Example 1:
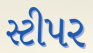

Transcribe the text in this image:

સ્ટીપર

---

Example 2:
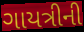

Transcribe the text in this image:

ગાયત્રીની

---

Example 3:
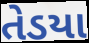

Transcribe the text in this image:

તેડયા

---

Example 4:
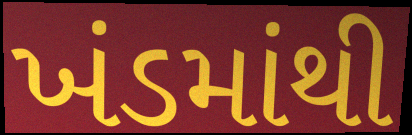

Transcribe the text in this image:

ખંડમાંથી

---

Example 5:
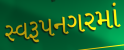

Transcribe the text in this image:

સ્વરૂપનગરમાં